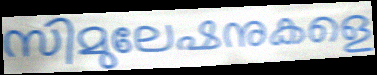
സിമുലേഷനുകളെ